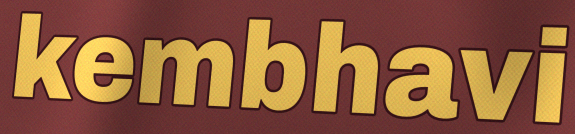
kembhavi